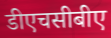
डीएचसीबीए